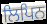
ਲਿਪਿਨ